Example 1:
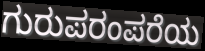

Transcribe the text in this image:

ಗುರುಪರಂಪರೆಯ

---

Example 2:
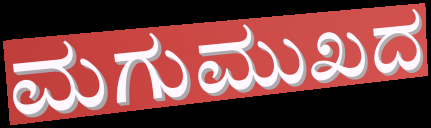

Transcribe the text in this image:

ಮಗುಮುಖದ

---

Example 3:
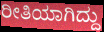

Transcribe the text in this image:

ರೀತಿಯಾಗಿದ್ದು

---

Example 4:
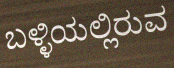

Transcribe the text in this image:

ಬಳ್ಳಿಯಲ್ಲಿರುವ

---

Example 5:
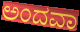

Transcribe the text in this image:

ಅಂದವಾ